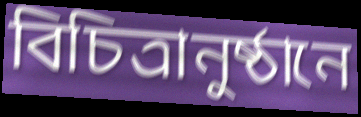
বিচিত্রানুষ্ঠানে